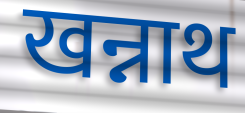
खन्नाथ